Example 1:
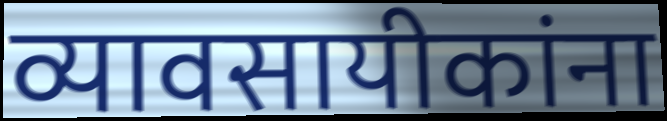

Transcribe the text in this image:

व्यावसायीकांना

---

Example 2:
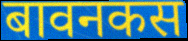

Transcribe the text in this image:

बावनकस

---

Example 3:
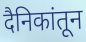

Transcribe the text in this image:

दैनिकांतून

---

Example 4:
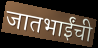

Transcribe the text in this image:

जातभाईंची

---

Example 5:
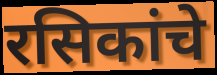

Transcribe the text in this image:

रसिकांचे